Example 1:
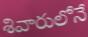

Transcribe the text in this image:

శివారులోనే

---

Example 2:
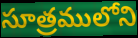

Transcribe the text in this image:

సూత్రములోని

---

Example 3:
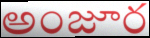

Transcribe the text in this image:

అంజూర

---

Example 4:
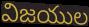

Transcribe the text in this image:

విజయుల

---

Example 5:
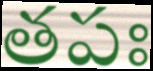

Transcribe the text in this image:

తపః